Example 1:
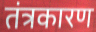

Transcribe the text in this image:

तंत्रकारण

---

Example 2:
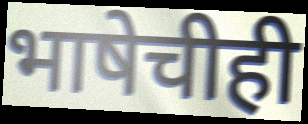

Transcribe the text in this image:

भाषेचीही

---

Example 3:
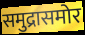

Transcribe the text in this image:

समुद्रासमोर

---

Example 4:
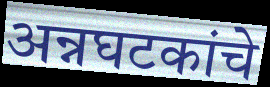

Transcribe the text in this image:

अन्नघटकांचे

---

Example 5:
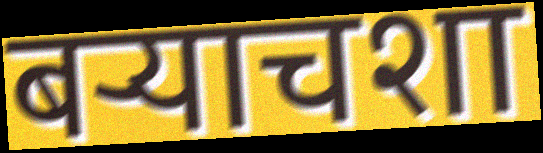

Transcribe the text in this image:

बऱ्याचशा